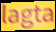
lagta